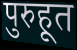
पुरुहूत